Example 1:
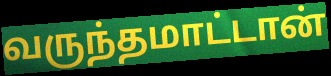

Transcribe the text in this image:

வருந்தமாட்டான்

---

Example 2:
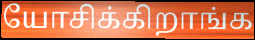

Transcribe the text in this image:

யோசிக்கிறாங்க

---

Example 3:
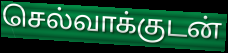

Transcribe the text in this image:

செல்வாக்குடன்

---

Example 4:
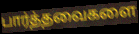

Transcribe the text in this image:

பார்த்தவைகளை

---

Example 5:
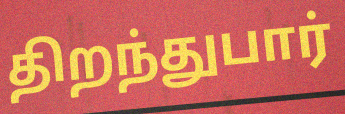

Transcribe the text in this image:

திறந்துபார்